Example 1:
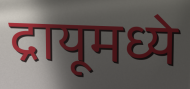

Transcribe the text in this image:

द्रायूमध्ये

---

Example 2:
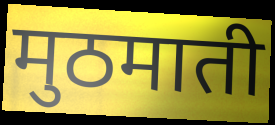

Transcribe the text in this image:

मुठमाती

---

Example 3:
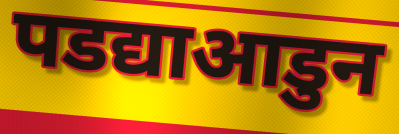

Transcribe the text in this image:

पडद्याआडुन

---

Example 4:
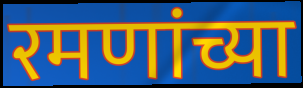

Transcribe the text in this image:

रमणांच्या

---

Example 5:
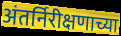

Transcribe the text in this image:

अंतर्निरीक्षणाच्या